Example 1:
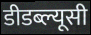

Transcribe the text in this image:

डीडब्ल्यूसी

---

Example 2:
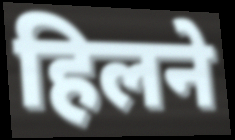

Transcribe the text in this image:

हिलने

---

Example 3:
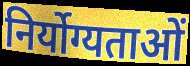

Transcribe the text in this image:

निर्योग्यताओं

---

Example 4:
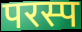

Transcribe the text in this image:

परस्प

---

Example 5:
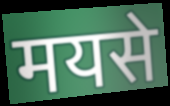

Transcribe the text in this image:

मयसे